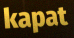
kapat